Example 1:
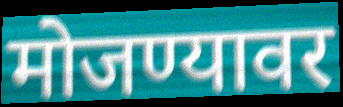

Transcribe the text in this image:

मोजण्यावर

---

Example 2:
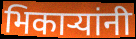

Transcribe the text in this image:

भिकाऱ्यांनी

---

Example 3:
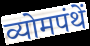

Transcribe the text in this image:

व्योमपंथें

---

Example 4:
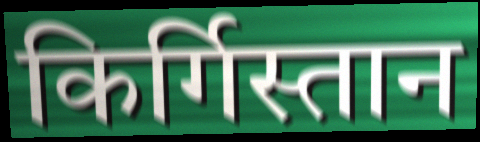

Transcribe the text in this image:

किर्गिस्तान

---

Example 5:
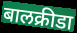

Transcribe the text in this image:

बालक्रीडा